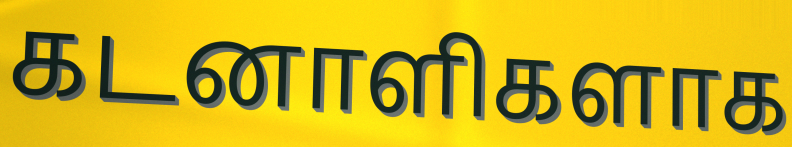
கடனாளிகளாக